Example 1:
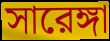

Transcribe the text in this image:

সারেঙ্গা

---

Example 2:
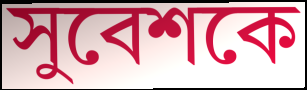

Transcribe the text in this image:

সুবেশকে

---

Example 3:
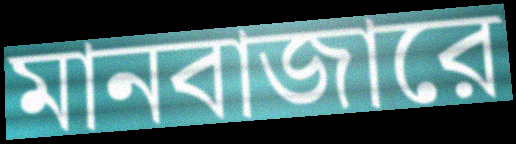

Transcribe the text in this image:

মানবাজারে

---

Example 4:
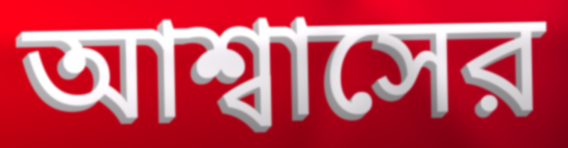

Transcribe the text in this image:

আশ্বাসের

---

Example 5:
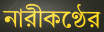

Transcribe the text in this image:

নারীকণ্ঠের